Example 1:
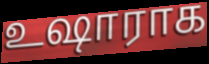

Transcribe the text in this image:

உஷாராக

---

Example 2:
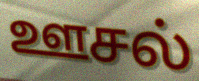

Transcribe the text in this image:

ஊசல்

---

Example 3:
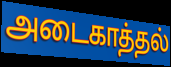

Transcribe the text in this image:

அடைகாத்தல்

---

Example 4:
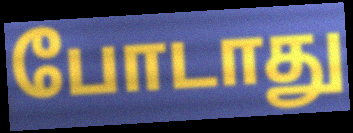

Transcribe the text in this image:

போடாது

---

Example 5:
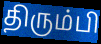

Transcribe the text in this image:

திரும்பி